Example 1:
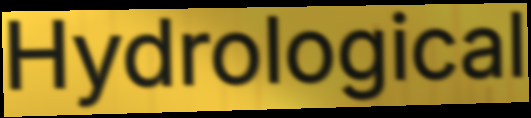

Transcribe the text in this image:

Hydrological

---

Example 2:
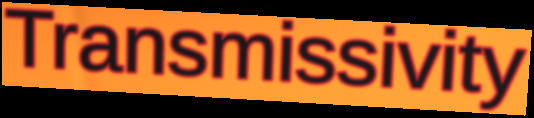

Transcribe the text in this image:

Transmissivity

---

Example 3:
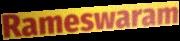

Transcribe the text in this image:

Rameswaram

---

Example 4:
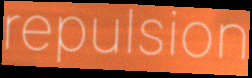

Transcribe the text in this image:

repulsion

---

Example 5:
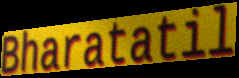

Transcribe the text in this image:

Bharatatil